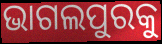
ଭାଗଲପୁରକୁ